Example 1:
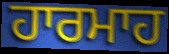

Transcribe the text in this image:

ਹਾਰਮਾਹ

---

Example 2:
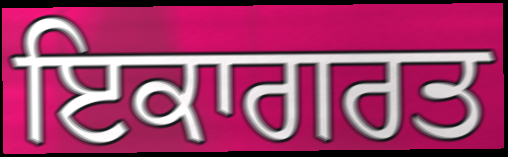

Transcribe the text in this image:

ਇਕਾਗਰਤ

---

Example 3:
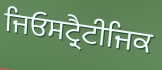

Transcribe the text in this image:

ਜਿਓਸਟ੍ਰੈਟੀਜਿਕ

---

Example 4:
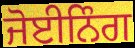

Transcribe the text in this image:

ਜੋਈਨਿੰਗ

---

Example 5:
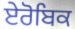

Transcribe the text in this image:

ਏਰੋਬਿਕ